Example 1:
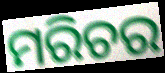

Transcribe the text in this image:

ମରିଚର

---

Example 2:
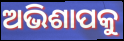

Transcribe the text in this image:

ଅଭିଶାପକୁ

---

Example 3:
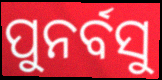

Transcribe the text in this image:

ପୁନର୍ବସୁ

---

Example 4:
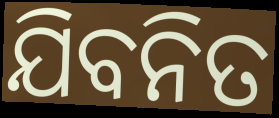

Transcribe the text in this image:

ଯିବନିତ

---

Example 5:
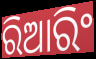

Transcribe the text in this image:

ରିଆରିଂ